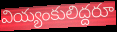
వియ్యంకులిద్దరూ